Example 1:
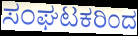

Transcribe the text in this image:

ಸಂಘಟಕರಿಂದ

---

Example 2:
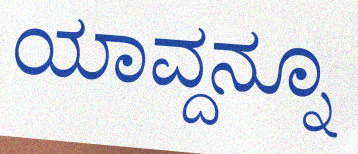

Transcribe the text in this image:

ಯಾವ್ದನ್ನೂ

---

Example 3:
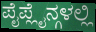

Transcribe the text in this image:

ಪೈಪ್ಲೈನ್ಗಳಲ್ಲಿ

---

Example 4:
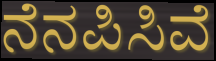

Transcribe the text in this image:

ನೆನಪಿಸಿವೆ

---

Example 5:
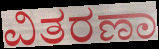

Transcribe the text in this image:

ವಿತರಣಾ